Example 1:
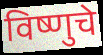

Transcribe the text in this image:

विष्णुचे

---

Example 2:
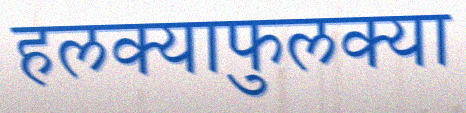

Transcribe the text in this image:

हलक्याफुलक्या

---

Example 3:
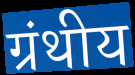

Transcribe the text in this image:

ग्रंथीय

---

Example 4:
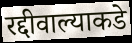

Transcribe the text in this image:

रद्दीवाल्याकडे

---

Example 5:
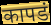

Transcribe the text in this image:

कापडं